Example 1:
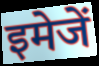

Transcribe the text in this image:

इमेजें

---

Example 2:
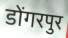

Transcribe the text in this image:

डोंगरपुर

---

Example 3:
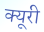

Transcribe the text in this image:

क्यूरी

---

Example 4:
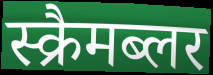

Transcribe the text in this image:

स्क्रैमब्लर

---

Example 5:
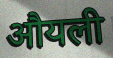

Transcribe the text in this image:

औयली